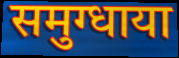
समुग्धाया